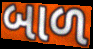
બાળ